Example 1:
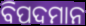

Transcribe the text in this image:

ବିପଦମାନ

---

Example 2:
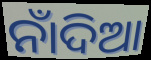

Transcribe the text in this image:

ନାଁଦିଆ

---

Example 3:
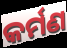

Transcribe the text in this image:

କର୍ମଣ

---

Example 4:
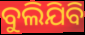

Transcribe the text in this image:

ବୁଲିଯିବି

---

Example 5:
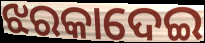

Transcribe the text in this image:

ଝରକାଦେଇ